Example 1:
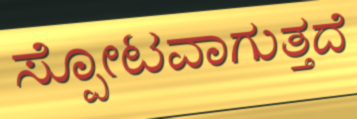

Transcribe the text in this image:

ಸ್ಪೋಟವಾಗುತ್ತದೆ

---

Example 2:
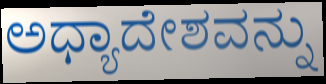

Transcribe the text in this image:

ಅಧ್ಯಾದೇಶವನ್ನು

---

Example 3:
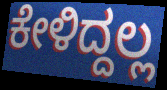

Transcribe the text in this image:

ಕೇಳಿದ್ದಲ್ಲ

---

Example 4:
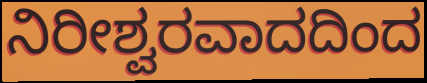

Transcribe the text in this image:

ನಿರೀಶ್ವರವಾದದಿಂದ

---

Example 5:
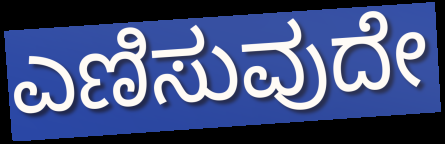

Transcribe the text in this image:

ಎಣಿಸುವುದೇ